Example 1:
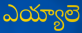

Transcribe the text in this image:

ఎయ్యాలె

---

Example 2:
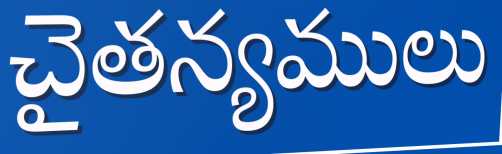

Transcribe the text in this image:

చైతన్యములు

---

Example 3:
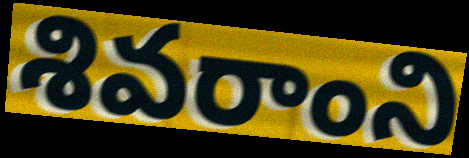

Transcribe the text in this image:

శివరాంని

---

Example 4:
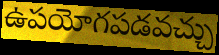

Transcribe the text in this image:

ఉపయోగపడవచ్చు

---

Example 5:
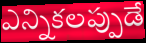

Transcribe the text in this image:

ఎన్నికలప్పుడే